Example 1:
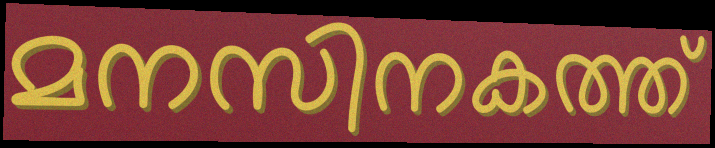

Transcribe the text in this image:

മനസിനകത്ത്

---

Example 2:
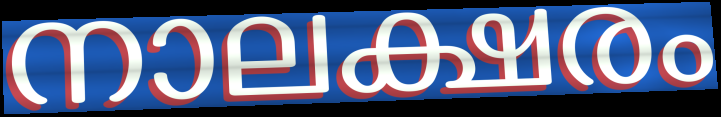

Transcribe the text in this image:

നാലക്ഷരം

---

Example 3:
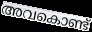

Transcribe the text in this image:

അവകൊണ്ട്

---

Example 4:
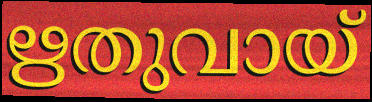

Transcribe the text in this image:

ഋതുവായ്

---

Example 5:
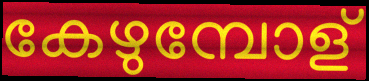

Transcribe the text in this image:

കേഴുമ്പോള്